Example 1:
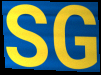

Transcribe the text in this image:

SG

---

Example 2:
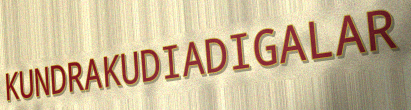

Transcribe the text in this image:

KUNDRAKUDIADIGALAR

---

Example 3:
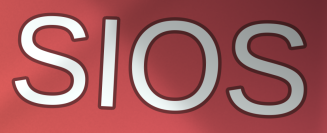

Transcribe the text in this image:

SIOS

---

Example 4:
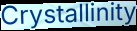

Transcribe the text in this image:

Crystallinity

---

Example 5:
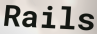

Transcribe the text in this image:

Rails